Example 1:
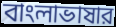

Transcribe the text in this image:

বাংলাভাষার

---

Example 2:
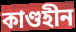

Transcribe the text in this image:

কাণ্ডহীন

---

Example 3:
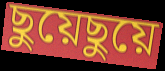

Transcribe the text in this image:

ছুয়েছুয়ে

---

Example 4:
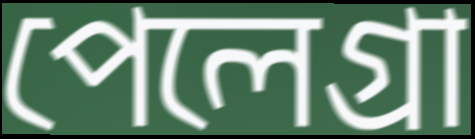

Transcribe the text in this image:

পেলেগ্রা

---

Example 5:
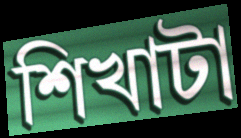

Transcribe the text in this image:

শিখাটা